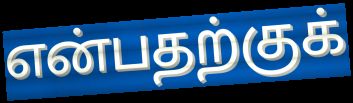
என்பதற்குக்